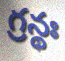
గ్రన్థః